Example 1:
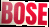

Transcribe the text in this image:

BOSE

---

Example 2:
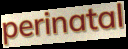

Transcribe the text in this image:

perinatal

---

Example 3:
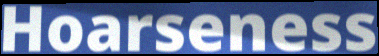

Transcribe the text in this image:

Hoarseness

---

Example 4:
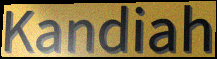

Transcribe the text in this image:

Kandiah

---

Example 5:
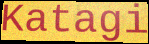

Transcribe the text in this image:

Katagi